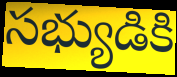
సభ్యుడికి